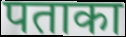
पताका